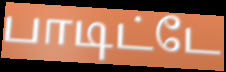
பாடிட்டே